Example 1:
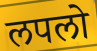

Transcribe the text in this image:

लपलो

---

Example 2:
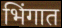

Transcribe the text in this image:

भिंगात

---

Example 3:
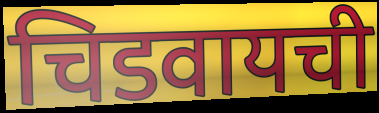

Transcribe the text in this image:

चिडवायची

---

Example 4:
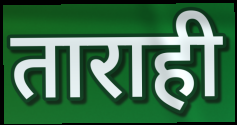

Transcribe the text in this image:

ताराही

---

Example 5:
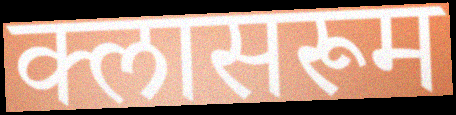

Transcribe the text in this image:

क्लासरूम